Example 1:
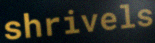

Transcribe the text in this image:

shrivels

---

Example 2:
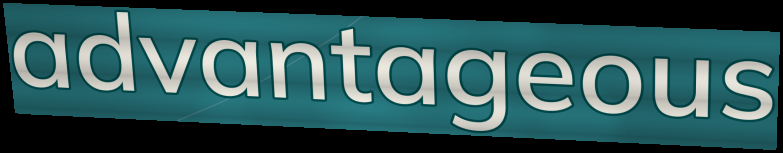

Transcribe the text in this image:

advantageous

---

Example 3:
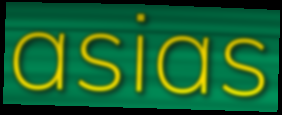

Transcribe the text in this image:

asias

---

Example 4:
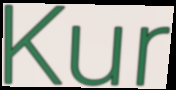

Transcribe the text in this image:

Kur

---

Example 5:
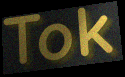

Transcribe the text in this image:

Tok